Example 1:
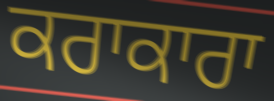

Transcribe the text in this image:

ਕਰਾਕਾਰਾ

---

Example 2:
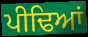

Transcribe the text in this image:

ਪੀਢਿਆਂ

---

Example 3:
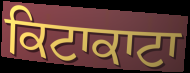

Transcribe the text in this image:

ਕਿਟਾਕਾਟਾ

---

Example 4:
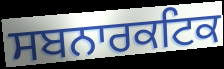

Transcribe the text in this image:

ਸਬਨਾਰਕਟਿਕ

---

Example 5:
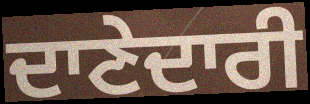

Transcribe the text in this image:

ਦਾਣੇਦਾਰੀ